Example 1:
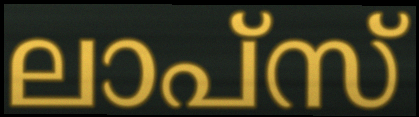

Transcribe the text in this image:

ലാപ്സ്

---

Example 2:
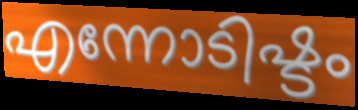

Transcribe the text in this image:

എന്നോടിഷ്ടം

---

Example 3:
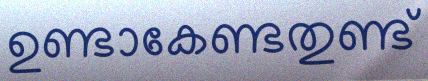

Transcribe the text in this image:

ഉണ്ടാകേണ്ടതുണ്ട്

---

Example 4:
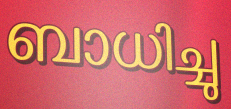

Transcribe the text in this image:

ബാധിച്ചു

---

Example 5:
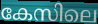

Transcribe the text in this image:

കേസിലെ